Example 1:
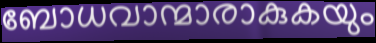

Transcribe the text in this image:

ബോധവാന്മാരാകുകയും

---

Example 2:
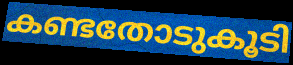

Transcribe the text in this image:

കണ്ടതോടുകൂടി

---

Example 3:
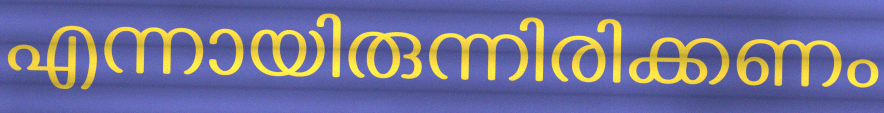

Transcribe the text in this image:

എന്നായിരുന്നിരിക്കണം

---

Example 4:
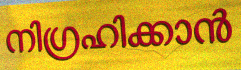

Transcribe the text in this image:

നിഗ്രഹിക്കാൻ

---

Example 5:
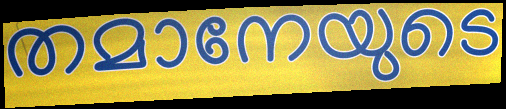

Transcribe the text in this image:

തമാനേയുടെ